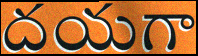
దయగా